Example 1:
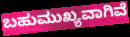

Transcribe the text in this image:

ಬಹುಮುಖ್ಯವಾಗಿವೆ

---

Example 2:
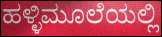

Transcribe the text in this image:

ಹಳ್ಳಿಮೂಲೆಯಲ್ಲಿ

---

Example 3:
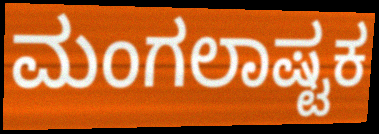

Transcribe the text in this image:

ಮಂಗಲಾಷ್ಟಕ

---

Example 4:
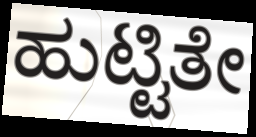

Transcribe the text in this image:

ಹುಟ್ಟಿತೇ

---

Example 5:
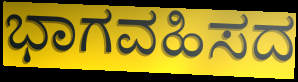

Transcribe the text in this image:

ಭಾಗವಹಿಸದ